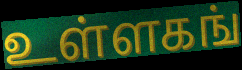
உள்ளகங்